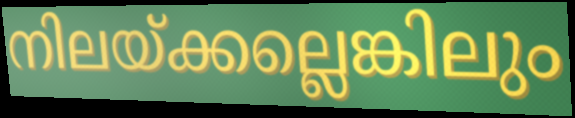
നിലയ്ക്കല്ലെങ്കിലും